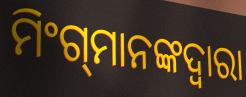
ମିଂଗ୍‍ମାନଙ୍କଦ୍ୱାରା